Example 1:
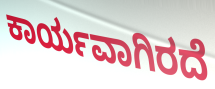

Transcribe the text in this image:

ಕಾರ್ಯವಾಗಿರದೆ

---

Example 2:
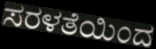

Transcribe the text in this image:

ಸರಳತೆಯಿಂದ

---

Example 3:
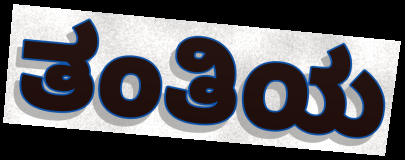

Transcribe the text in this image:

ತಂತಿಯ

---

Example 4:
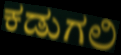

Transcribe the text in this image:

ಕಡುಗಲಿ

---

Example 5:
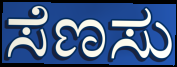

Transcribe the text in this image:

ಸೆಣಸು